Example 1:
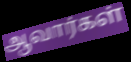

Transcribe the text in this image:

ஆவார்கள்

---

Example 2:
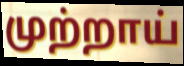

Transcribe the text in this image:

முற்றாய்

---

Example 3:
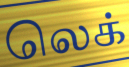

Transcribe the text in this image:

லெக்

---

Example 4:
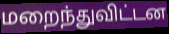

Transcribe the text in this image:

மறைந்துவிட்டன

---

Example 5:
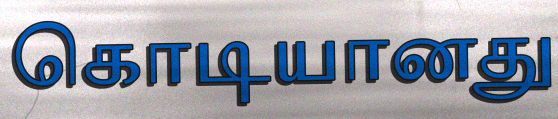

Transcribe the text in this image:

கொடியானது